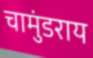
चामुंडराय